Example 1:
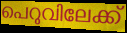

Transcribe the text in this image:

പെറുവിലേക്ക്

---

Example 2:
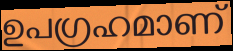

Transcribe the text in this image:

ഉപഗ്രഹമാണ്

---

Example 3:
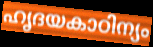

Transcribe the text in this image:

ഹൃദയകാഠിന്യം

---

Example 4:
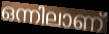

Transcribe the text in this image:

ഒന്നിലാണ്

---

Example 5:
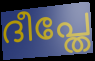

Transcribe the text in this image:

ദീപ്തേ